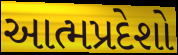
આત્મપ્રદેશો